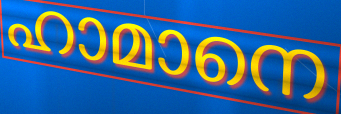
ഹാമാനെ